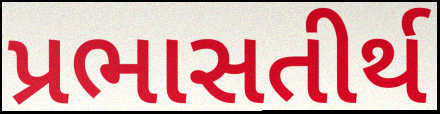
પ્રભાસતીર્થ